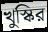
খুস্কির